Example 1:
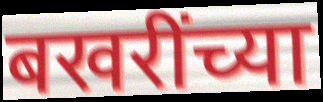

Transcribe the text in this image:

बखरींच्या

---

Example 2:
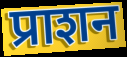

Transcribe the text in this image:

प्राशन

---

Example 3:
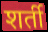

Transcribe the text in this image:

शर्ती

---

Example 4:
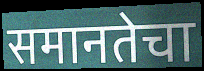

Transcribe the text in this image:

समानतेचा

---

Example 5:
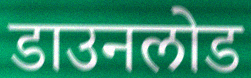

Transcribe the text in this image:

डाउनलोड